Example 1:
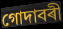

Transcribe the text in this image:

গোদাবৰী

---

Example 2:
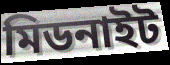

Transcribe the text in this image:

মিডনাইট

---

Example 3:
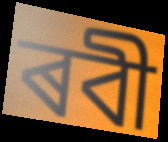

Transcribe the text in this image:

ৰবী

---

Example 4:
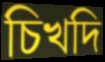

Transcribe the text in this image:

চিখদি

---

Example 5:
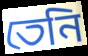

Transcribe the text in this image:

তেনি